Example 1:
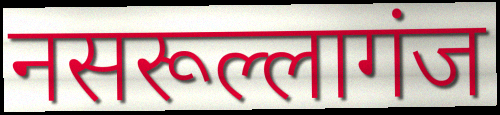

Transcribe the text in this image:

नसरूल्लागंज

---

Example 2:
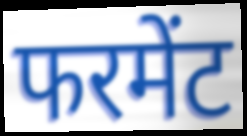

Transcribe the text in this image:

फरमेंट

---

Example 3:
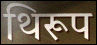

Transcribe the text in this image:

थिरूप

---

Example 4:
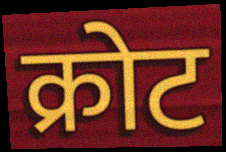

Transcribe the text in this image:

क्रोट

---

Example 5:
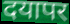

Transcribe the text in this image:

दयापर